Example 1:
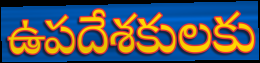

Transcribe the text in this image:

ఉపదేశకులకు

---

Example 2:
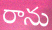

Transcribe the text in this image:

రాను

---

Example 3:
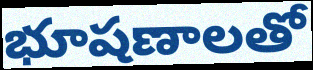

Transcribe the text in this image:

భూషణాలతో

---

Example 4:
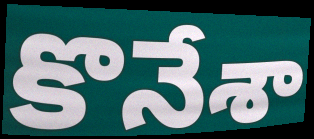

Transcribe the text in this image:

కొనేశా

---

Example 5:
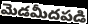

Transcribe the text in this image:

మెడమీదపడి